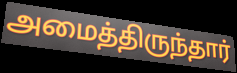
அமைத்திருந்தார்